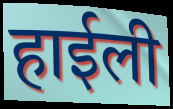
हाईली